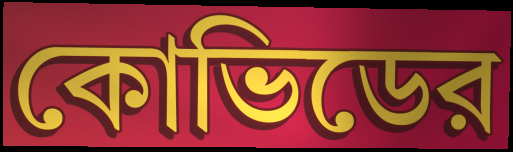
কোভিডের